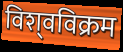
विश्वविक्रम